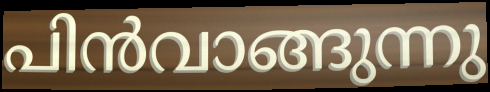
പിൻവാങ്ങുന്നു